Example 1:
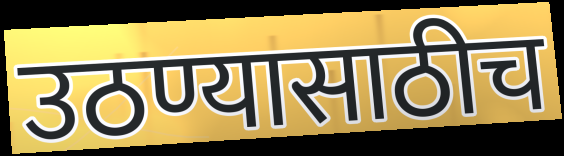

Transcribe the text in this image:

उठण्यासाठीच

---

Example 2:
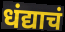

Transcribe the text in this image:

धंद्याचं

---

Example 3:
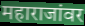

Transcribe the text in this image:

महाराजांवर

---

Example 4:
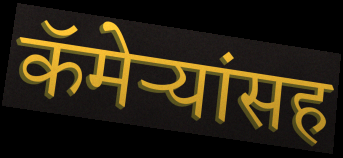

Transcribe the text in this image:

कॅमेऱ्यांसह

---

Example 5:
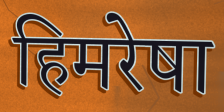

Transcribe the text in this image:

हिमरेषा